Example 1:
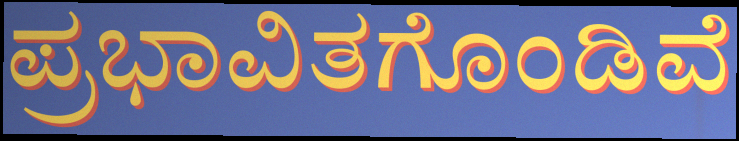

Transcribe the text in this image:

ಪ್ರಭಾವಿತಗೊಂಡಿವೆ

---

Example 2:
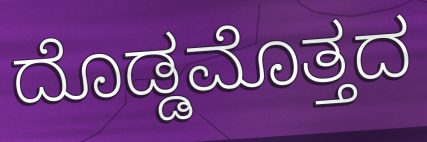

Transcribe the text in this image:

ದೊಡ್ಡಮೊತ್ತದ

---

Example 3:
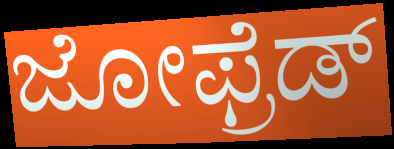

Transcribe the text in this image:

ಜೋಫ್ರೆಡ್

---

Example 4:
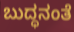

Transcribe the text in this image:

ಬುದ್ಧನಂತೆ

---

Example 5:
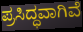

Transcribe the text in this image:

ಪ್ರಸಿದ್ಧವಾಗಿವೆ